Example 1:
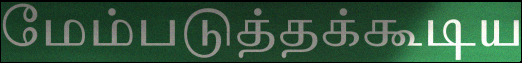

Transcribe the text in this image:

மேம்படுத்தக்கூடிய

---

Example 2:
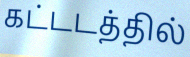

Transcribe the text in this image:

கட்டடத்தில்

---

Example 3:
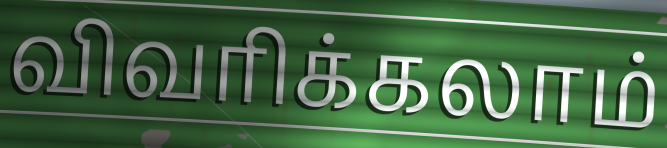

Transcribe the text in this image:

விவரிக்கலாம்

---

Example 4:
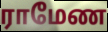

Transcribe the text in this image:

ராமேண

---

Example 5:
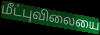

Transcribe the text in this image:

மீட்புவிலையை